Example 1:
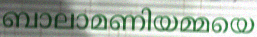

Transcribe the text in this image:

ബാലാമണിയമ്മയെ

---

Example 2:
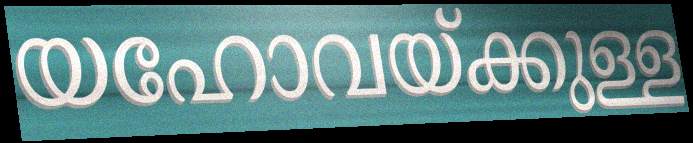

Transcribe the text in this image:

യഹോവയ്ക്കുള്ള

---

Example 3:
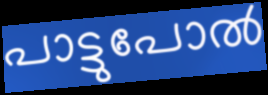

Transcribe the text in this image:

പാട്ടുപോൽ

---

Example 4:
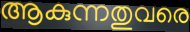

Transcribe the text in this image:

ആകുന്നതുവരെ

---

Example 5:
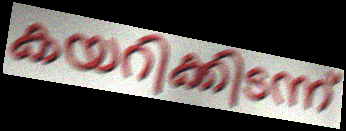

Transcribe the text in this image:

കയറിക്കിടന്ന്